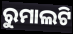
ରୁମାଲଟି